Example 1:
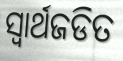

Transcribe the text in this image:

ସ୍ଵାର୍ଥଜଡିତ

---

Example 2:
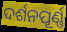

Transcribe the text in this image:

ଦର୍ଶନପୂର୍ଣ୍ଣ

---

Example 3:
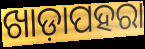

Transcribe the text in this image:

ଖାଡ଼ାପହରା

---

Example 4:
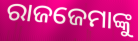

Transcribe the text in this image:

ରାଜଜେମାଙ୍କୁ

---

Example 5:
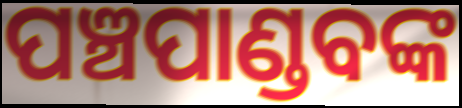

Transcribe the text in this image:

ପଞ୍ଚପାଣ୍ଡବଙ୍କ